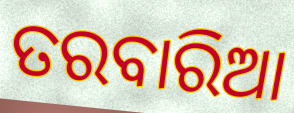
ତରବାରିଆ